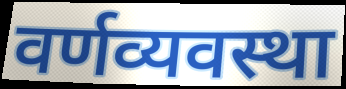
वर्णव्यवस्था